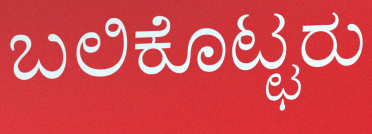
ಬಲಿಕೊಟ್ಟರು